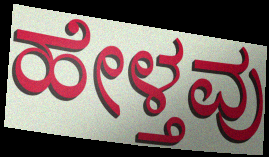
ಹೇಳ್ತವು